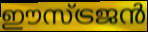
ഈസ്ട്രജൻ